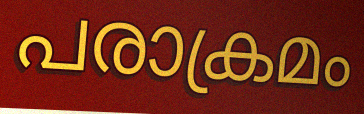
പരാക്രമം